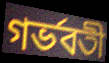
গর্ভবতী